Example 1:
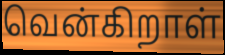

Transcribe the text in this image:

வென்கிறாள்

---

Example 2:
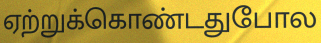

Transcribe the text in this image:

ஏற்றுக்கொண்டதுபோல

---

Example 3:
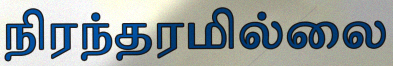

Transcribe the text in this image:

நிரந்தரமில்லை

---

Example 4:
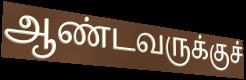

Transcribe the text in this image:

ஆண்டவருக்குச்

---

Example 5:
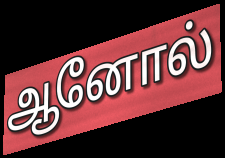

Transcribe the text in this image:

ஆனோல்